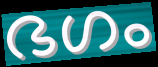
ഭഗം